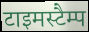
टाइमस्टैम्प